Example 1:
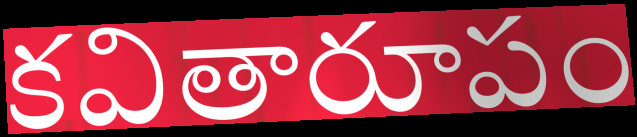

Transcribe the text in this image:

కవితారూపం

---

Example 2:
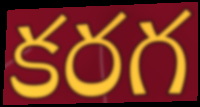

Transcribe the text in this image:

కరగ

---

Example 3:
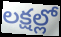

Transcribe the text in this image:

లక్షల్లో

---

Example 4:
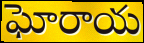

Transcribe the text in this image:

ఘోరాయ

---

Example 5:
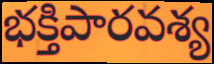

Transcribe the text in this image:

భక్తిపారవశ్య